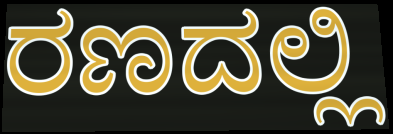
ರಣದಲ್ಲಿ